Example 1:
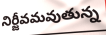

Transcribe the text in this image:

నిర్జీవమవుతున్న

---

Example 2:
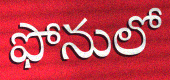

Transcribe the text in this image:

ఫోనులో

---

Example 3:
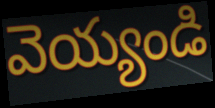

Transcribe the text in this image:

వెయ్యండి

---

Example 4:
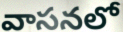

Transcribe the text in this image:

వాసనలో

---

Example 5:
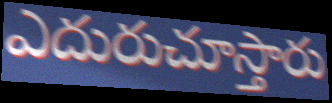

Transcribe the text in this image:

ఎదురుచూస్తారు